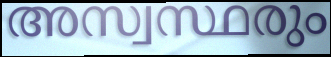
അസ്വസ്ഥരും